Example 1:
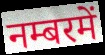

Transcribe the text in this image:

नम्बरमें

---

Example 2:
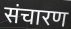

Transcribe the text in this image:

संचारण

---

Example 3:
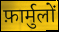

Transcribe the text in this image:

फ़ार्मुलों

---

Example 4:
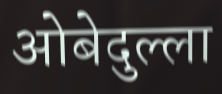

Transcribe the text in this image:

ओबेदुल्ला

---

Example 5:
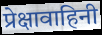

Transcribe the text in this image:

प्रेक्षावाहिनी